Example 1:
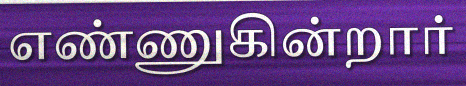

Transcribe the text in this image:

எண்ணுகின்றார்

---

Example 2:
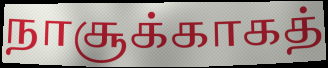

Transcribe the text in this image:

நாசூக்காகத்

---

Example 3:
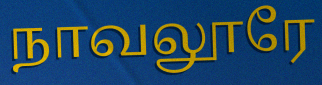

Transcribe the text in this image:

நாவலூரே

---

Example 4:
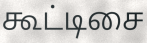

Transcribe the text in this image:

கூட்டிசை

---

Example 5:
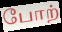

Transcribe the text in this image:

போற்